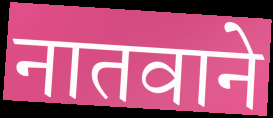
नातवाने